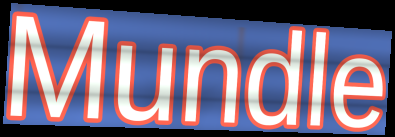
Mundle